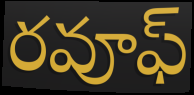
రవూఫ్